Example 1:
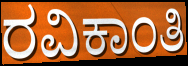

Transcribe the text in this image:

ರವಿಕಾಂತಿ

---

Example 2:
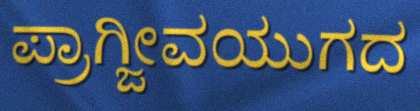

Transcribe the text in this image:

ಪ್ರಾಗ್ಜೀವಯುಗದ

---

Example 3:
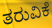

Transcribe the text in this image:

ತರುವಿಕೆ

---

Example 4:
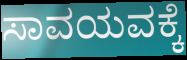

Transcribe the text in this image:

ಸಾವಯವಕ್ಕೆ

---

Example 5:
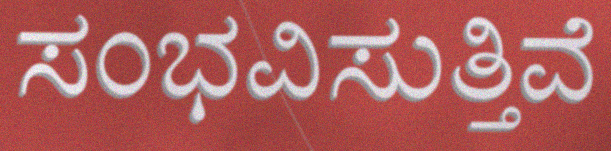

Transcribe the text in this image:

ಸಂಭವಿಸುತ್ತಿವೆ